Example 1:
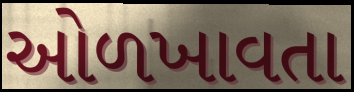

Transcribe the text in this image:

ઓળખાવતા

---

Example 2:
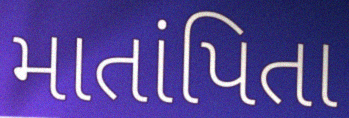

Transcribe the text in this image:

માતાંપિતા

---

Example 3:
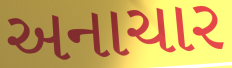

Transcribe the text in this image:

અનાચાર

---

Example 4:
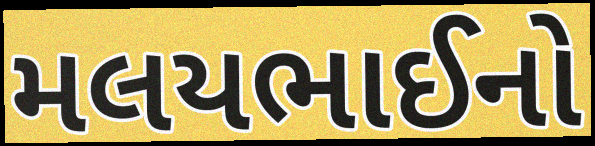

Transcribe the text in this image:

મલયભાઈનો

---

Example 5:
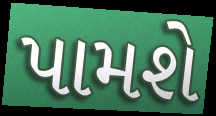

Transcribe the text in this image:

પામશે